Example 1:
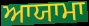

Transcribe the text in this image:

ਆਯਾਮਾ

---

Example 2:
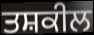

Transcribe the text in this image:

ਤਸ਼ਕੀਲ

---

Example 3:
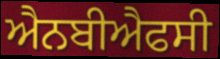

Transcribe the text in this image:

ਐਨਬੀਐਫਸੀ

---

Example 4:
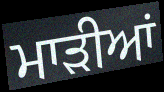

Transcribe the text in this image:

ਮਾੜੀਆਂ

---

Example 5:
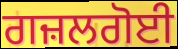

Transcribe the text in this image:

ਗਜ਼ਲਗੋਈ